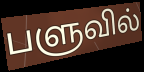
பளுவில்